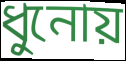
ধুনোয়